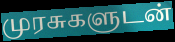
முரசுகளுடன்